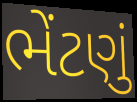
ભેંટણું